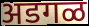
अडगळ